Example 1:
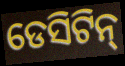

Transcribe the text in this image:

ଡେସିଟିନ୍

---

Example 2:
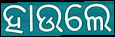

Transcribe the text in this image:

ହାଉଲେ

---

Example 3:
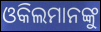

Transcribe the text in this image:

ଓକିଲମାନଙ୍କୁ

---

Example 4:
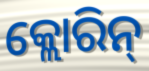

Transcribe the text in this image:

କ୍ଲୋରିନ୍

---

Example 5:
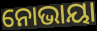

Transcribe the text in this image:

ନୋଭାୟା